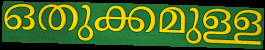
ഒതുക്കമുള്ള